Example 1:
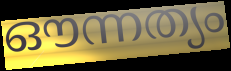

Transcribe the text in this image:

ഔന്നത്യം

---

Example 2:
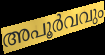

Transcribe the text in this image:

അപൂർവവും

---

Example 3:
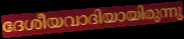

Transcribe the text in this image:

ദേശീയവാദിയായിരുന്നു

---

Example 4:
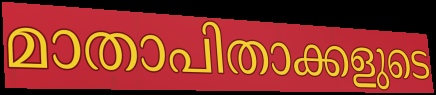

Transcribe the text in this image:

മാതാപിതാക്കളുടെ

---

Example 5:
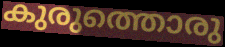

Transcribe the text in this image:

കുരുത്തൊരു